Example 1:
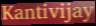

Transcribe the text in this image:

Kantivijay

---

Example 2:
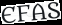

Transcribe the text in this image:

EFAS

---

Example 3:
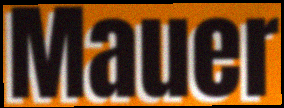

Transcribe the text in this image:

Mauer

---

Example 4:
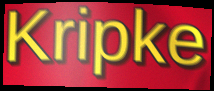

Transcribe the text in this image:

Kripke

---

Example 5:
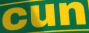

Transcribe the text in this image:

cun